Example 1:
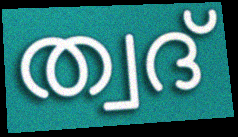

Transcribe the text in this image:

ത്വദ്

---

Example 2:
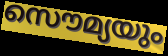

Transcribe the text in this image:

സൌമ്യയും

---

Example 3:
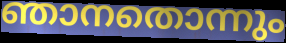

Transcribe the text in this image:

ഞാനതൊന്നും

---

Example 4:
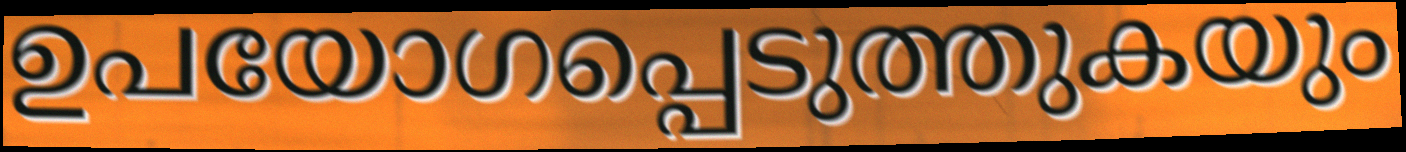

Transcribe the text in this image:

ഉപയോഗപ്പെടുത്തുകയും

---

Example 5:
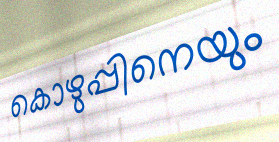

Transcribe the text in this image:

കൊഴുപ്പിനെയും